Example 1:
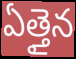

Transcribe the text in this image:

ఏత్తైన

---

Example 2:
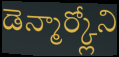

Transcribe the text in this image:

డెన్మార్క్లోని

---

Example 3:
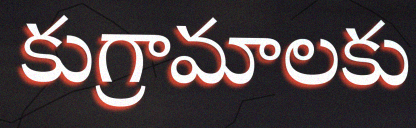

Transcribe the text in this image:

కుగ్రామాలకు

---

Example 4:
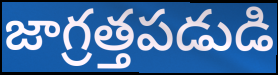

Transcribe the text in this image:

జాగ్రత్తపడుడి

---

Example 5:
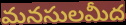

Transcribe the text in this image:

మనసులమీద